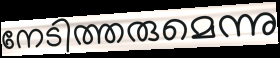
നേടിത്തരുമെന്നു